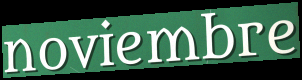
noviembre